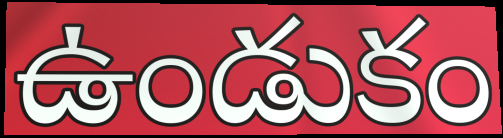
ఉండుకం